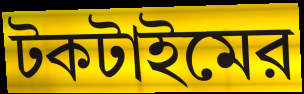
টকটাইমের